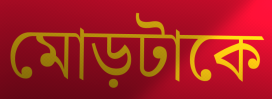
মোড়টাকে